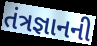
તંત્રજ્ઞાનની